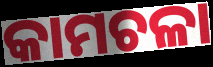
କାମଚଳା